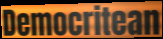
Democritean